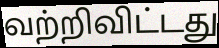
வற்றிவிட்டது